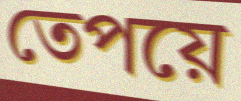
তেপয়ে